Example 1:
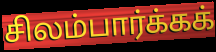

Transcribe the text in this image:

சிலம்பார்க்கக்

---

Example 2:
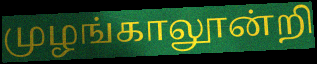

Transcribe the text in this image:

முழங்காலூன்றி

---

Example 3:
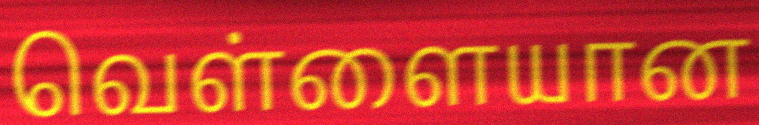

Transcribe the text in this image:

வெள்ளையான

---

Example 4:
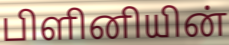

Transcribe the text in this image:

பிளினியின்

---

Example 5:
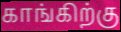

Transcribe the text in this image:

காங்கிற்கு